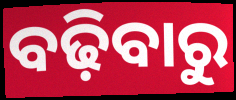
ବଢ଼ିବାରୁ